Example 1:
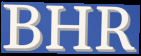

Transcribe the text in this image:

BHR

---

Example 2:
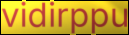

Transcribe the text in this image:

vidirppu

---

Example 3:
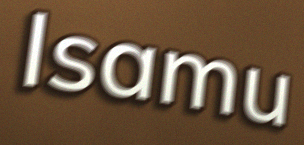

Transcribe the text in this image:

Isamu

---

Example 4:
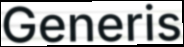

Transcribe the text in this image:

Generis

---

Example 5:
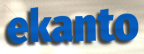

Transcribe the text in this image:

ekanto